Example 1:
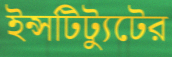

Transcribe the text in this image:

ইন্সটিট্যুটের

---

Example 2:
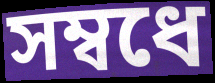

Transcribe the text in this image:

সম্বধে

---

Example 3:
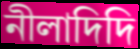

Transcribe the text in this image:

নীলাদিদি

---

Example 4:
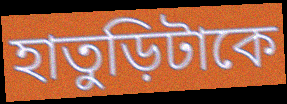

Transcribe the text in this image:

হাতুড়িটাকে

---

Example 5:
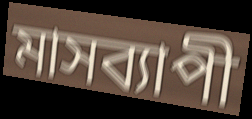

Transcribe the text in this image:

মাসব্যাপী